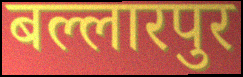
बल्लारपुर